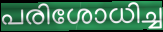
പരിശോധിച്ച